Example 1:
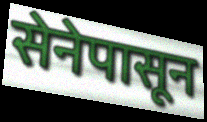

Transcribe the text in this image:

सेनेपासून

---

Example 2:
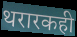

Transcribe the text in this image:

थरारकही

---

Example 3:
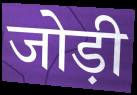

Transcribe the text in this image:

जोड़ी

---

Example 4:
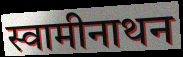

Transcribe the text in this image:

स्वामीनाथन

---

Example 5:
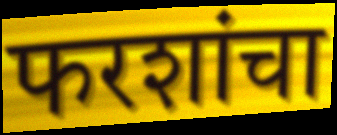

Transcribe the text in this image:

फरशांचा